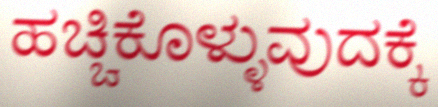
ಹಚ್ಚಿಕೊಳ್ಳುವುದಕ್ಕೆ